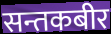
सन्तकबीर